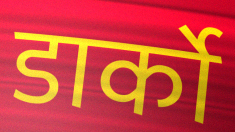
डार्को